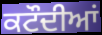
ਕਟੌਦੀਆਂ